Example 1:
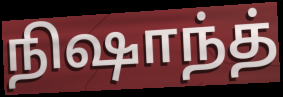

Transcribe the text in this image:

நிஷாந்த்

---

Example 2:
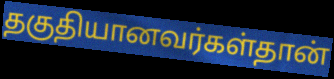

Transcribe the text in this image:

தகுதியானவர்கள்தான்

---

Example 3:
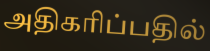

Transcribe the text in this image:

அதிகரிப்பதில்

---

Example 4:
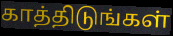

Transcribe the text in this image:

காத்திடுங்கள்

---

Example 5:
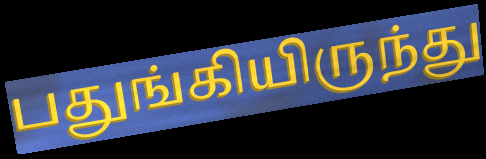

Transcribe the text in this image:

பதுங்கியிருந்து